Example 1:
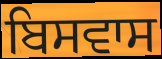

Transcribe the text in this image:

ਬਿਸਵਾਸ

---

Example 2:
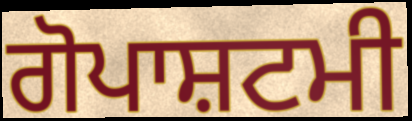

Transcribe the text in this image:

ਗੋਪਾਸ਼ਟਮੀ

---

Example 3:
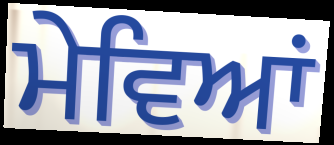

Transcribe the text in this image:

ਮੇਵਿਆਂ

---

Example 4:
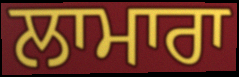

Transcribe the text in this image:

ਲਾਮਾਰਾ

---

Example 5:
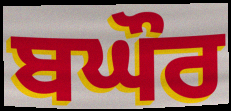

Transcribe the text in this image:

ਬਘੌਰ